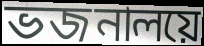
ভজনালয়ে